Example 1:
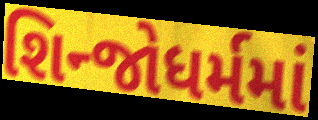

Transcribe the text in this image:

શિન્જોધર્મમાં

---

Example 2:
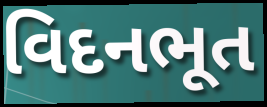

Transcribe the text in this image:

વિદનભૂત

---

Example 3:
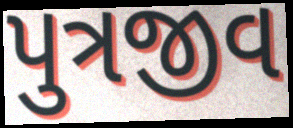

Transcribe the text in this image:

પુત્રજીવ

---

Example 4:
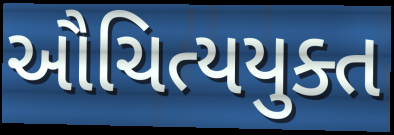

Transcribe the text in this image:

ઔચિત્યયુક્ત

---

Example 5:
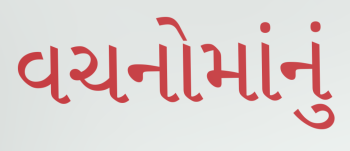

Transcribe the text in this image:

વચનોમાંનું